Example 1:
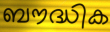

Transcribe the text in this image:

ബൗദ്ധിക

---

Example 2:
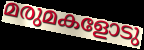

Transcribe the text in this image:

മരുമകളോടു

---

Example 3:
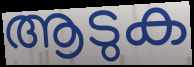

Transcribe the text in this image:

ആടുക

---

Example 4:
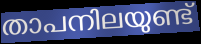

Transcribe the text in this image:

താപനിലയുണ്ട്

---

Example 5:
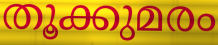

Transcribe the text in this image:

തൂക്കുമരം